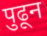
पुढून